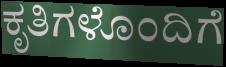
ಕೃತಿಗಳೊಂದಿಗೆ